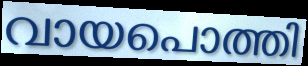
വായപൊത്തി